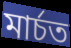
মাৰ্চত